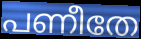
പണീതേ